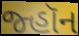
જ્હૉન